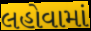
લહોવામાં